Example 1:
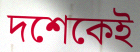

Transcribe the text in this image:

দশেকেই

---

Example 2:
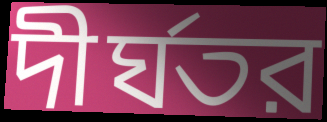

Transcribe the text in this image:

দীর্ঘতর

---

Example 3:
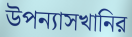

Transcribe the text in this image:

উপন্যাসখানির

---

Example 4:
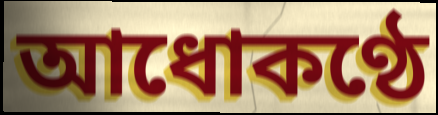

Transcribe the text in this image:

আধোকণ্ঠে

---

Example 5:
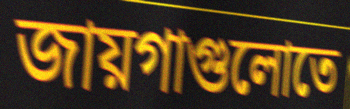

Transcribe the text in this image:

জায়গাগুলোতে